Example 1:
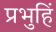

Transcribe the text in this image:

प्रभुहिं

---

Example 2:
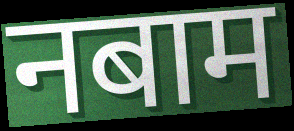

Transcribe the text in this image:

नबाम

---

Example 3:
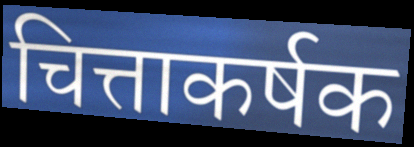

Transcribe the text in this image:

चित्ताकर्षक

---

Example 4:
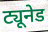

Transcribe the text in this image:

ट्यूनेड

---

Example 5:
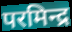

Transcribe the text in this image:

परमिन्द्र